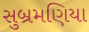
સુબ્રમણિયા